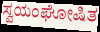
ಸ್ವಯಂಘೋಷಿತ